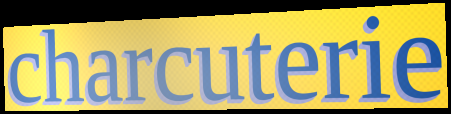
charcuterie